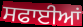
ਸਫਾਈਆਂ